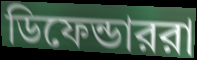
ডিফেন্ডাররা